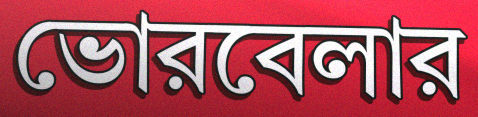
ভোরবেলার